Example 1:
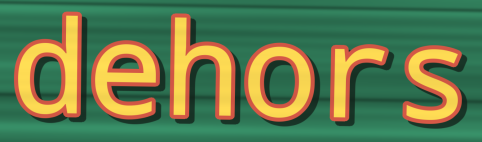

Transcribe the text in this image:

dehors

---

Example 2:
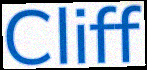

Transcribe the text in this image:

Cliff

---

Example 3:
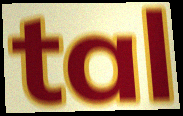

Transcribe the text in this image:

tal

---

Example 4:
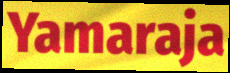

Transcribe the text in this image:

Yamaraja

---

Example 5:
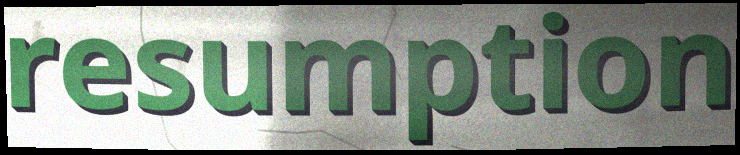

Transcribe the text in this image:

resumption